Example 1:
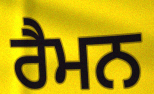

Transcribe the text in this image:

ਰੈਮਨ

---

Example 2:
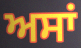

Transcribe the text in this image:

ਅਸਾਂ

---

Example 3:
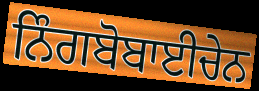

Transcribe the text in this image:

ਨਿੰਗਬੋਬਾਈਚੇਨ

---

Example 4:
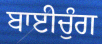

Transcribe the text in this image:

ਬਾਈਚੁੰਗ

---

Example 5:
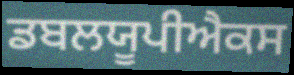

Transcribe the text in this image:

ਡਬਲਯੂਪੀਐਕਸ